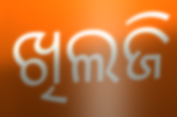
ଖିଲଜି